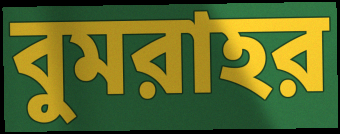
বুমরাহর